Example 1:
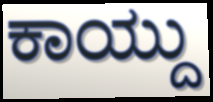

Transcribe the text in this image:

ಕಾಯ್ದು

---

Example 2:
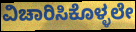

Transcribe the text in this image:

ವಿಚಾರಿಸಿಕೊಳ್ಳಲೇ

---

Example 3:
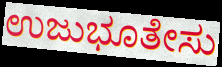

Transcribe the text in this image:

ಉಜುಭೂತೇಸು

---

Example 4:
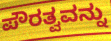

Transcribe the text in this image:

ಪೌರತ್ವವನ್ನು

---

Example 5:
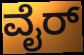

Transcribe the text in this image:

ವೈರ್